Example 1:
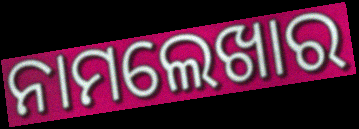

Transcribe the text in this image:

ନାମଲେଖାର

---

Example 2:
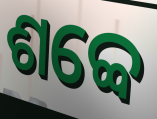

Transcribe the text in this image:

ଶବ୍ବେ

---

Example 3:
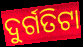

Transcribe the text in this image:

ଦୁର୍ଗତିଟା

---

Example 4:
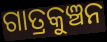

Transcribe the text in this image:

ଗାତ୍ରକୁଞ୍ଚନ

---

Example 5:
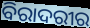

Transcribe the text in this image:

ବିରାଦରୀର